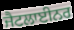
ਜੈਟਲਾਈਨਰ